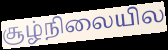
சூழ்நிலையில